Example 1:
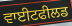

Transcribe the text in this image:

ਵਾਈਟਫੀਲਡ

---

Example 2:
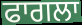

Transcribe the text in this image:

ਫਾਗਲਾ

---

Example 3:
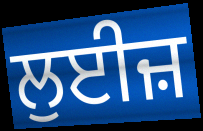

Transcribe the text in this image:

ਲੁਈਜ਼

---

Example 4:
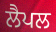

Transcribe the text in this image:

ਲੈਪਲ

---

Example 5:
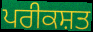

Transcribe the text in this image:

ਪਰੀਕਸ਼ਤ